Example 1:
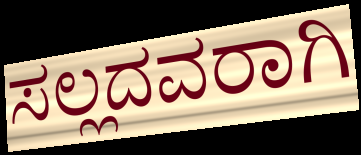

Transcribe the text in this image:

ಸಲ್ಲದವರಾಗಿ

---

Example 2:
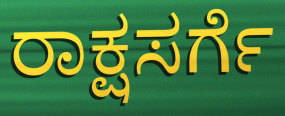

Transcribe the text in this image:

ರಾಕ್ಷಸರ್ಗೆ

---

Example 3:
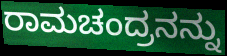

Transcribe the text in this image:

ರಾಮಚಂದ್ರನನ್ನು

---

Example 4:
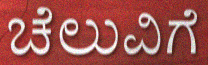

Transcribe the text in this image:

ಚೆಲುವಿಗೆ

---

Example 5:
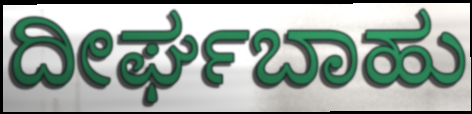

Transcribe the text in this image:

ದೀರ್ಘಬಾಹು